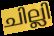
ചില്ലി